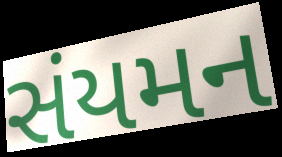
સંયમન